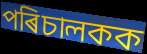
পৰিচালকক